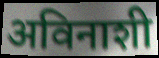
अविनाशी